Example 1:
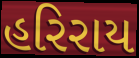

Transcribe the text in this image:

હરિરાય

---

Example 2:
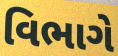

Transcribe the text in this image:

વિભાગે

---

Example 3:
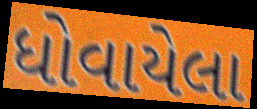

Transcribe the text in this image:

ધોવાયેલા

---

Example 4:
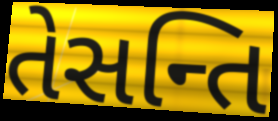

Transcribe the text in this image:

તેસન્તિ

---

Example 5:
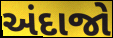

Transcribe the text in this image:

અંદાજો